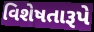
વિશેષતારૂપે